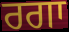
ਰਗਾ